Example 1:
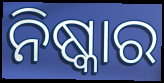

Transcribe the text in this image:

ନିଷ୍କାର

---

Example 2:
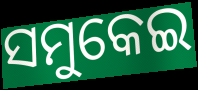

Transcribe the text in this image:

ସମୁକେଇ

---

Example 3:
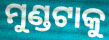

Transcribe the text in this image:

ମୁଣ୍ଡଟାକୁ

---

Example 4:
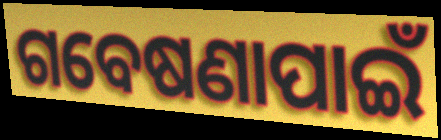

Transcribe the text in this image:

ଗବେଷଣାପାଇଁ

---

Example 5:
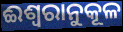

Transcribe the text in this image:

ଈଶ୍ଵରାନୁକୂଳ